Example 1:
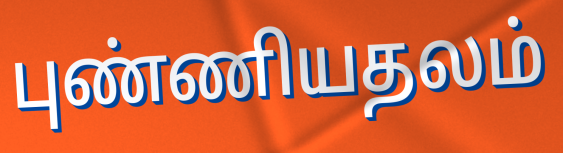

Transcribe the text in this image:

புண்ணியதலம்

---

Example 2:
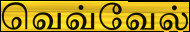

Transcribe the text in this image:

வெவ்வேல்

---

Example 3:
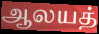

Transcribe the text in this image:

ஆலயத்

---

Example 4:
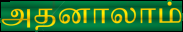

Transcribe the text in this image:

அதனாலாம்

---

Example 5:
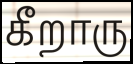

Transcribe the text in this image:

கீறாரு